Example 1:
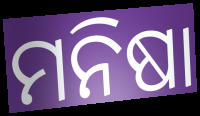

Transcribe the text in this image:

ମନିଷା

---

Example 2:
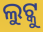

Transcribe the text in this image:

ଲୁଟ୍କୁ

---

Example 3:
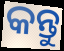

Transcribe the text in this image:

କନ୍ତୁ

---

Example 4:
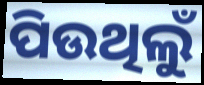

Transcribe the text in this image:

ପିଉଥିଲୁଁ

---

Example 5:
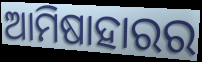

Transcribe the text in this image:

ଆମିଷାହାରର